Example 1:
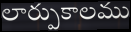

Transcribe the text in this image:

లార్పుకాలము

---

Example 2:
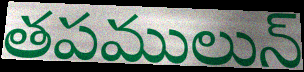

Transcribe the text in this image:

తపములున్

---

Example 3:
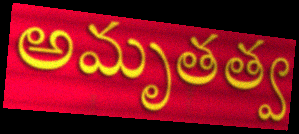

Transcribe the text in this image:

అమృతత్వ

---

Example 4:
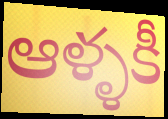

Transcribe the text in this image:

ఆళ్ళకీ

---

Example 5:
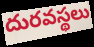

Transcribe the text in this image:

దురవస్థలు